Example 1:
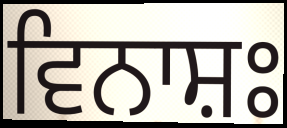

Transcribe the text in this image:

ਵਿਨਾਸ਼ਃ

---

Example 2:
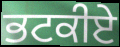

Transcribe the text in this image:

ਭਟਕੀਏ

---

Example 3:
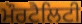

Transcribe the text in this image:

ਮੌਰਟੈਲਿਟੀ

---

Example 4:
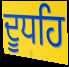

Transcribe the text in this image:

ਦੂਧਹਿ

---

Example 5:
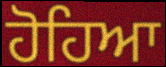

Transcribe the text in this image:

ਹੋਹਿਆ